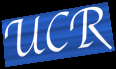
UCR